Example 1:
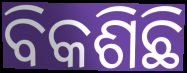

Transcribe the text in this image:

ବିକଶିଛି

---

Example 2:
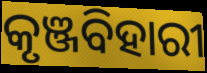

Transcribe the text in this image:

କୃଞ୍ଜବିହାରୀ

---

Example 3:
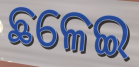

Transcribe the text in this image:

ଛଳେଇ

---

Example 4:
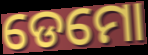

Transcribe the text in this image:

ଡେମୋ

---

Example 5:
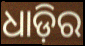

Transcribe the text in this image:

ଧାଡ଼ିର